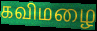
கவிமழை